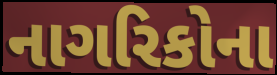
નાગરિકોના